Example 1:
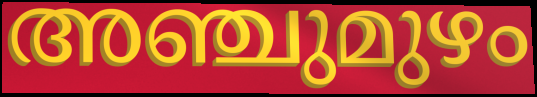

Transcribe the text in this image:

അഞ്ചുമുഴം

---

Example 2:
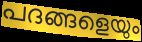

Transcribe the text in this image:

പദങ്ങളെയും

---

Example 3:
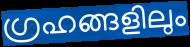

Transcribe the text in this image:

ഗ്രഹങ്ങളിലും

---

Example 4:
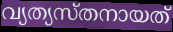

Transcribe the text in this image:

വ്യത്യസ്തനായത്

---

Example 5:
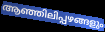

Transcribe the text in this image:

ആഞ്ഞിലിപ്പഴങ്ങളും